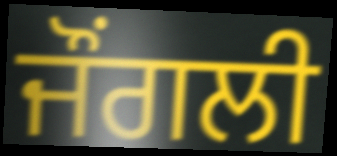
ਜੌਂਗਲੀ